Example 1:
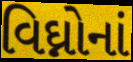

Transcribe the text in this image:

વિઘ્નોનાં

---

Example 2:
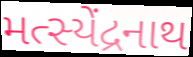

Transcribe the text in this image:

મત્સ્યેંદ્રનાથ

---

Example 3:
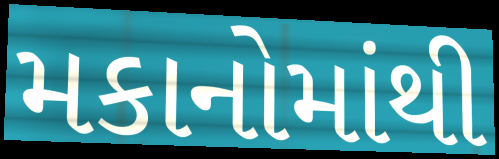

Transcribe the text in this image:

મકાનોમાંથી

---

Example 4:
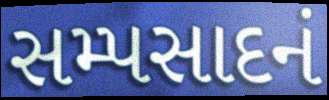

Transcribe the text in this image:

સમ્પસાદનં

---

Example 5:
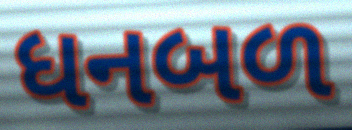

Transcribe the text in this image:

ધનબળ